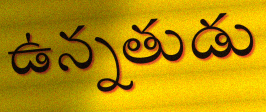
ఉన్నతుడు